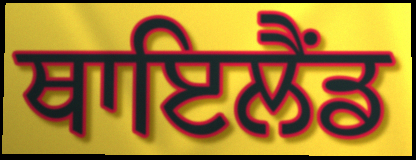
ਥਾਇਲੈਂਡ